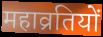
महाव्रतियों